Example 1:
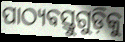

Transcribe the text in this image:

ପାଠ୍ୟବସ୍ତୁଗୁଡ଼ିକୁ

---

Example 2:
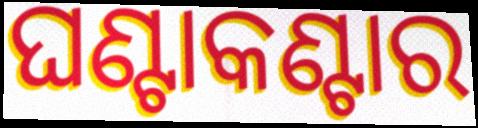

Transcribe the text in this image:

ଘଣ୍ଟାକଣ୍ଟାର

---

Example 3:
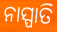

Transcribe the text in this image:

ନାସ୍ପାତି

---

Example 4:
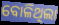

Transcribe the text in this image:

ବୋଳିଥିଲା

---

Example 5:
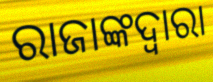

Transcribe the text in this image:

ରାଜାଙ୍କଦ୍ଵାରା